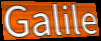
Galile